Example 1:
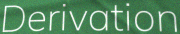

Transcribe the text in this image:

Derivation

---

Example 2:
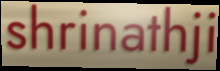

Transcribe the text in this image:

shrinathji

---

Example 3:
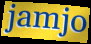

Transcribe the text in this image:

jamjo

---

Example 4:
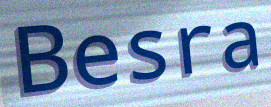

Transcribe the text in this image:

Besra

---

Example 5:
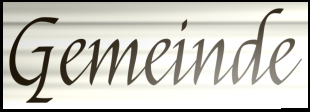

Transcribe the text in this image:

Gemeinde